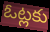
ఓట్లకు